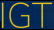
IGT